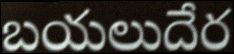
బయలుదేర